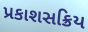
પ્રકાશસક્રિય